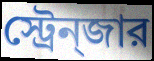
স্ট্রেন্জার